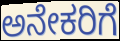
ಅನೇಕರಿಗೆ